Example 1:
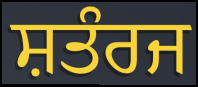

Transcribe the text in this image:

ਸ਼ਤੰਰਜ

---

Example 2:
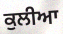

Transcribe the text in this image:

ਕੁਲੀਆ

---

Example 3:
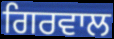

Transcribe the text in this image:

ਗਿਰਵਾਲ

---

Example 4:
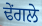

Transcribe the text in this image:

ਢੇਂਗਲੇ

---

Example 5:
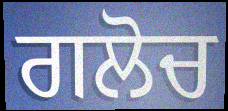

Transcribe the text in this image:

ਗਲੋਚ